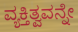
ವ್ಯಕ್ತಿತ್ವವನ್ನೇ